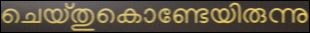
ചെയ്തുകൊണ്ടേയിരുന്നു